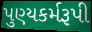
પુણ્યકર્મરૂપી